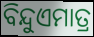
ବିନ୍ଦୁଏମାତ୍ର